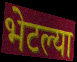
भेटल्या